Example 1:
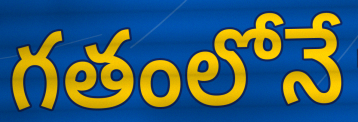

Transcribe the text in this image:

గతంలోనే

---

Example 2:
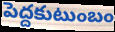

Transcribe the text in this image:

పెద్దకుటుంబం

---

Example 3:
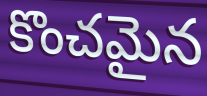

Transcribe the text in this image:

కొంచమైన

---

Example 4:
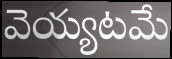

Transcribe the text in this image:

వెయ్యటమే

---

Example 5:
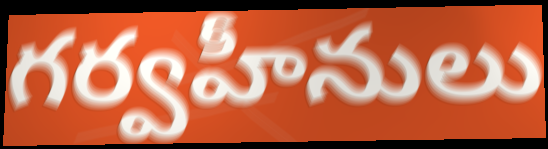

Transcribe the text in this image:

గర్వహీనులు